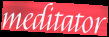
meditator